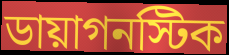
ডায়াগনস্টিক